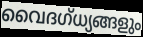
വൈദഗ്ധ്യങ്ങളും